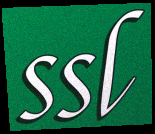
ssl